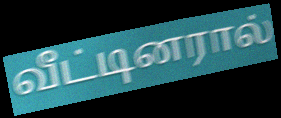
வீட்டினரால்